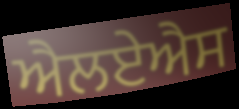
ਐਲਏਐਸ